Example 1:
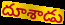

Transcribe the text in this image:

దూశాడు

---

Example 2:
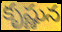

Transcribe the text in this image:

కృష్ణున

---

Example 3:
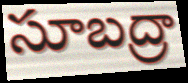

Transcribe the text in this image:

సూబద్రా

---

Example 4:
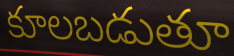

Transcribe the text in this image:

కూలబడుతూ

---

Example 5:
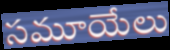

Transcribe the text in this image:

సమూయేలు